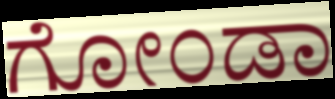
ಗೋಂಡಾ